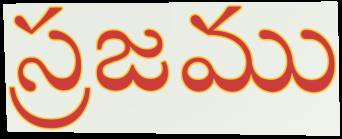
స్రజము